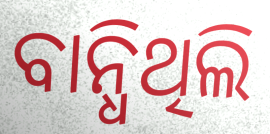
ବାନ୍ଧିଥିଲି